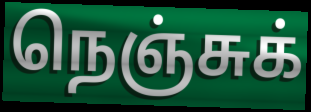
நெஞ்சுக்